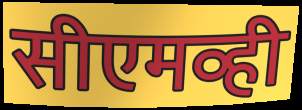
सीएमव्ही